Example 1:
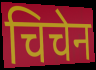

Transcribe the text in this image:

चिचेन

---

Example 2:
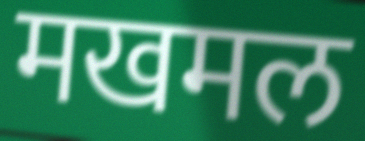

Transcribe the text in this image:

मखमल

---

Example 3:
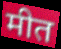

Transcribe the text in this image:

मीत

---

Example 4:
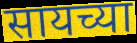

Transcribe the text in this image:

सायच्या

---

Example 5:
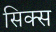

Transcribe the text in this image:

सिक्स